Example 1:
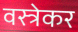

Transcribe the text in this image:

वस्त्रेकर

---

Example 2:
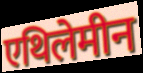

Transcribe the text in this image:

एथिलेमीन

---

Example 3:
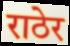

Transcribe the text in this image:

राठेर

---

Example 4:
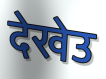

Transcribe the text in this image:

देखेउ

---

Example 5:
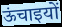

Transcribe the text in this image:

ऊंचाइयों